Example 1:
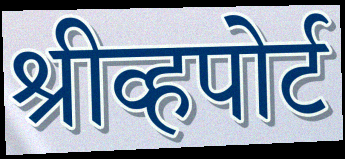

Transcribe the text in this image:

श्रीव्हपोर्ट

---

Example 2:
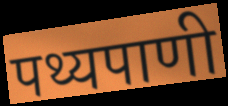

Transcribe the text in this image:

पथ्यपाणी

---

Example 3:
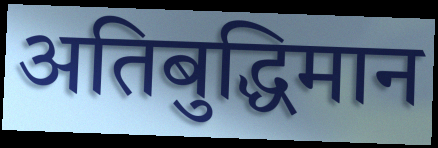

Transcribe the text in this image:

अतिबुद्धिमान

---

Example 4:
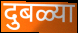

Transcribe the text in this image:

दुबळ्या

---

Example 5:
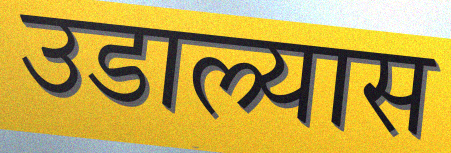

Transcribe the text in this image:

उडाल्यास